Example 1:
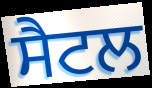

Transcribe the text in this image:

ਸੈਟਲ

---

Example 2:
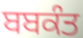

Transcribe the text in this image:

ਬਬਕੰਤ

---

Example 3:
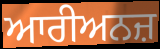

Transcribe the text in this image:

ਆਰੀਅਨਜ਼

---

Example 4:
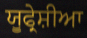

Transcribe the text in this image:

ਯੂਫ੍ਰੇਸ਼ੀਆ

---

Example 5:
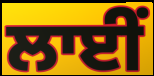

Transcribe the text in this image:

ਲਾਈਂ